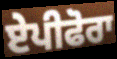
ਏਪੀਫੋਰਾ